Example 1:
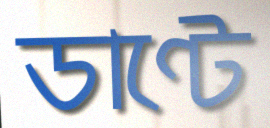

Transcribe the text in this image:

ডাণ্টে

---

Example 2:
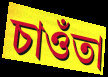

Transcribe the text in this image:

চাওঁতা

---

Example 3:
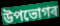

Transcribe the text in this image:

উপভোগৰ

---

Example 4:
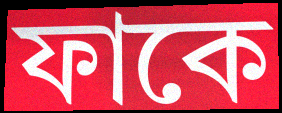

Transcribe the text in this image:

ফাকে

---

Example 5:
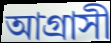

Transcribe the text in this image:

আগ্ৰাসী